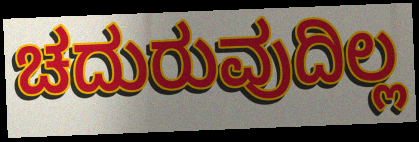
ಚದುರುವುದಿಲ್ಲ